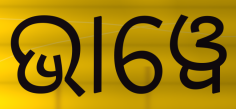
ଭାୱେ